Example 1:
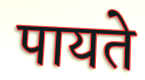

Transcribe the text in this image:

पायते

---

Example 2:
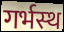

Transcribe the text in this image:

गर्भस्‍थ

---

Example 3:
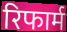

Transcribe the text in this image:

रिफार्म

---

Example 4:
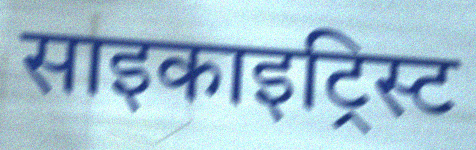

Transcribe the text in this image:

साइकाइट्रिस्ट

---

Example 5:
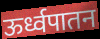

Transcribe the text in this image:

ऊर्ध्वपातन